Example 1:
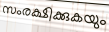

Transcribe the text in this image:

സംരക്ഷിക്കുകയും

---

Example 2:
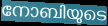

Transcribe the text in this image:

നോബിയുടെ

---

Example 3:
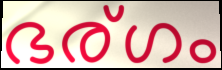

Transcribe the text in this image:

ഭര്ഗം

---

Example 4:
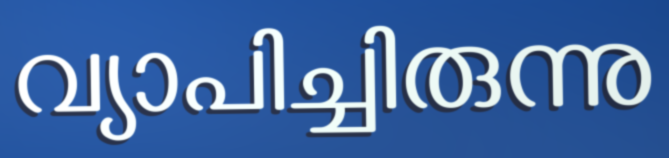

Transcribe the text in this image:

വ്യാപിച്ചിരുന്നു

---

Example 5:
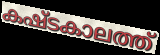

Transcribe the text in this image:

കഷ്ടകാലത്ത്